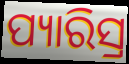
ପ୍ୟାରିସ୍ର